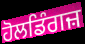
ਹੋਲਡਿੰਗਜ਼